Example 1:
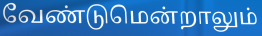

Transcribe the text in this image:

வேண்டுமென்றாலும்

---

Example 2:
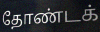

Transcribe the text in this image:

தோண்டக்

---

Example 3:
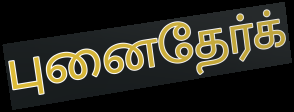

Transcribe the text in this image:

புனைதேர்க்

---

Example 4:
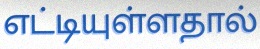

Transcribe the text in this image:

எட்டியுள்ளதால்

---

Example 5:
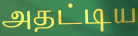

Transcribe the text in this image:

அதட்டிய